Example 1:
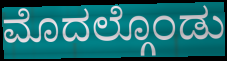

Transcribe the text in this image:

ಮೊದಲ್ಗೊಂಡು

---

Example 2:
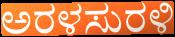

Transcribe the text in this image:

ಅರಳಸುರಳಿ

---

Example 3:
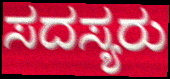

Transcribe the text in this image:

ಸದಸ್ಯರು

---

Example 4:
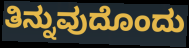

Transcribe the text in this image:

ತಿನ್ನುವುದೊಂದು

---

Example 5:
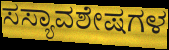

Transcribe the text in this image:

ಸಸ್ಯಾವಶೇಷಗಳ